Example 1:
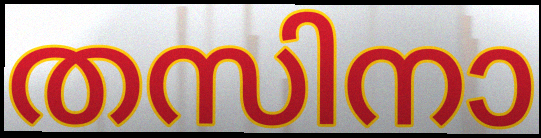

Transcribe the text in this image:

തസിനാ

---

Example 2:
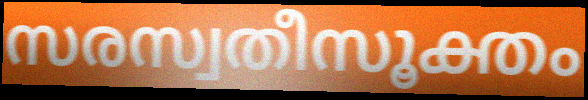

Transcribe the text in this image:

സരസ്വതീസൂക്തം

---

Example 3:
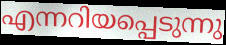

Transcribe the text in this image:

എന്നറിയപ്പെടുന്നു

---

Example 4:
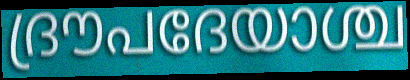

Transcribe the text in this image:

ദ്രൗപദേയാശ്ച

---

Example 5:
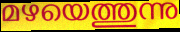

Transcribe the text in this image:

മഴയെത്തുന്നു